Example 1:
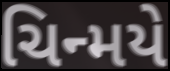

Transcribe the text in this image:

ચિન્મયે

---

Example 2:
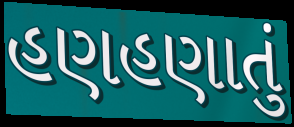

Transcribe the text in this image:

હણહણાતું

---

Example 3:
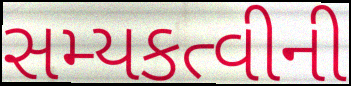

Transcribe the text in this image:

સમ્યકત્વીની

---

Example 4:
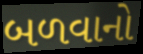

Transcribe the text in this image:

બળવાનો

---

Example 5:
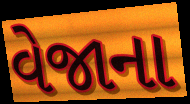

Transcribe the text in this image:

વેજાના